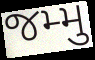
જમ્મુ